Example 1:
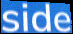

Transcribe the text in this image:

side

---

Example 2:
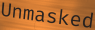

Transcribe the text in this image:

Unmasked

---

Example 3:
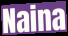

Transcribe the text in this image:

Naina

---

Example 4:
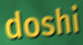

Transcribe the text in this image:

doshi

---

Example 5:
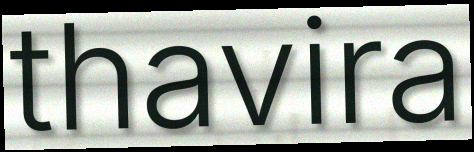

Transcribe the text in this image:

thavira